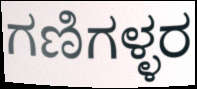
ಗಣಿಗಳ್ಳರ